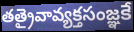
తత్రైవావ్యక్తసంజ్ఞకే